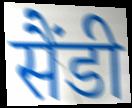
सैंडी